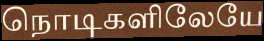
நொடிகளிலேயே